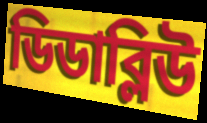
ডিডাব্লিউ